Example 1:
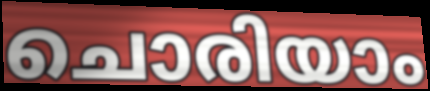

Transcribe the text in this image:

ചൊരിയാം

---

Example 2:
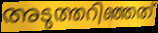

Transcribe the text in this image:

അടുത്തറിഞ്ഞത്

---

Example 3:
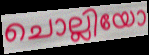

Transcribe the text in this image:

ചൊല്ലിയോ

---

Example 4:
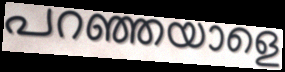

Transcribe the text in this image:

പറഞ്ഞയാളെ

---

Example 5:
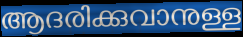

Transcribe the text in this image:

ആദരിക്കുവാനുള്ള